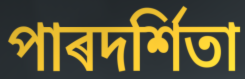
পাৰদৰ্শিতা